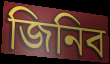
জিনিব